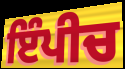
ਇੰਪੀਚ